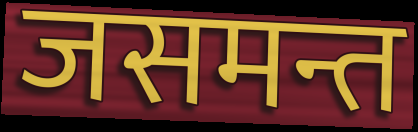
जसमन्त